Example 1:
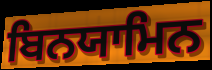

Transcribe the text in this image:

ਬਿਨਯਾਮਿਨ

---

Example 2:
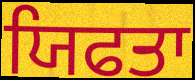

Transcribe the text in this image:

ਯਿਫਤਾ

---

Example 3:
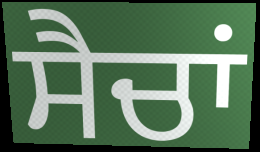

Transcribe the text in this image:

ਸੈਚਾਂ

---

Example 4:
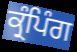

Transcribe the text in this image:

ਕ੍ਰੰਪਿੰਗ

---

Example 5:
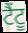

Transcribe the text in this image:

ਟੈਂਟੂ